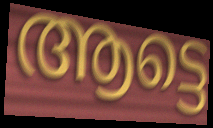
ആട്ടെ